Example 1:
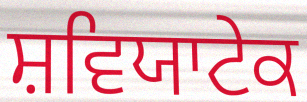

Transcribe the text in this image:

ਸ਼ਵਿਯਾਟੇਕ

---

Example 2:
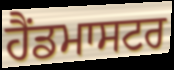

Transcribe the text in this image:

ਹੈਂਡਮਾਸਟਰ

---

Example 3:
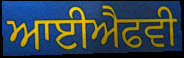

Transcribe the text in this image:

ਆਈਐਫਵੀ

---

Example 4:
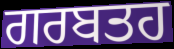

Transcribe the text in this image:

ਗਰਬਤਹ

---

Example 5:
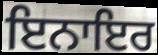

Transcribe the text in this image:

ਇਨਾਇਰ